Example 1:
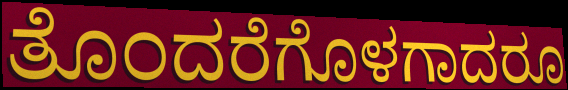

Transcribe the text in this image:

ತೊಂದರೆಗೊಳಗಾದರೂ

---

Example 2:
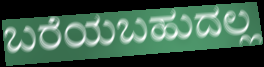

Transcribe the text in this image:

ಬರೆಯಬಹುದಲ್ಲ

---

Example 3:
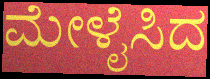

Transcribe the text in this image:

ಮೇಳೈಸಿದ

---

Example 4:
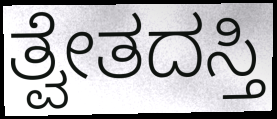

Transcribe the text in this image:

ತ್ವೇತದಸ್ತಿ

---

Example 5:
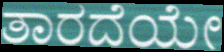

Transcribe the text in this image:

ತಾರದೆಯೇ